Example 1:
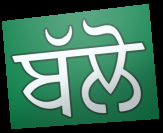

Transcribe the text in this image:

ਬੱਲੋ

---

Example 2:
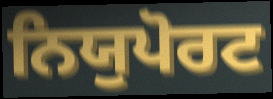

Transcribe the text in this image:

ਨਿਯੁਪੋਰਟ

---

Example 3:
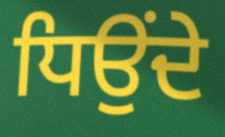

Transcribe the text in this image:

ਧਿਉਂਦੇ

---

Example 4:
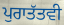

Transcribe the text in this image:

ਪੁਰਾਤੱਤਵੀ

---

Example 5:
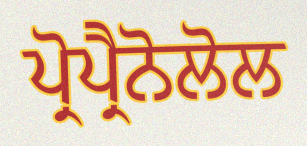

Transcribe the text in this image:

ਪ੍ਰੋਪ੍ਰੈਨੋਲੋਲ